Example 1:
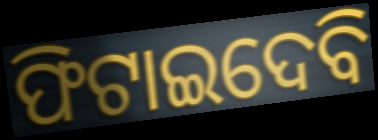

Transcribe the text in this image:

ଫିଟାଇଦେବି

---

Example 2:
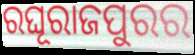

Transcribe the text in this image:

ରଘୂରାଜପୁରର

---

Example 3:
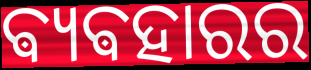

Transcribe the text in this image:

ଵ୍ୟଵହାରର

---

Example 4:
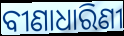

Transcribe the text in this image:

ବୀଣାଧାରିଣୀ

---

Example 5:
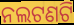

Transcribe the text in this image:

ନଲଟଣଟି